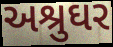
અશ્રુઘર